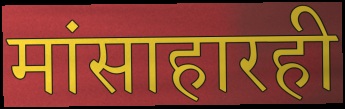
मांसाहारही